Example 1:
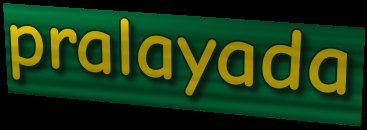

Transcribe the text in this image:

pralayada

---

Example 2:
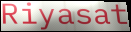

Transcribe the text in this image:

Riyasat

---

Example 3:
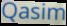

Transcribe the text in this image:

Qasim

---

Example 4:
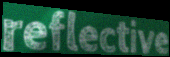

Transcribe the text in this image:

reflective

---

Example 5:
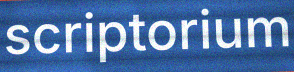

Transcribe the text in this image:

scriptorium